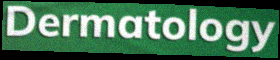
Dermatology